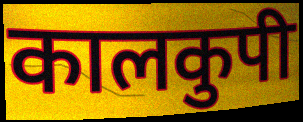
कालकुपी